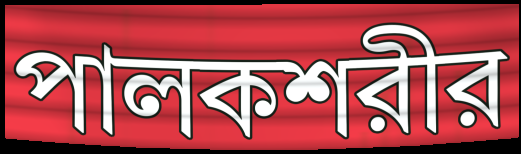
পালকশরীর